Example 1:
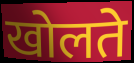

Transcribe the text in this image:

खोलते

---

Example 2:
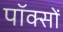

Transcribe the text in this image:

पॉक्सों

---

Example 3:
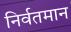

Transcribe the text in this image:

निर्वतमान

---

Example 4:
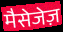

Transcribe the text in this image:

मैसेजेज़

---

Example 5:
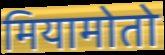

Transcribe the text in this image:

मियामोतो